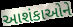
આશંકાઓને